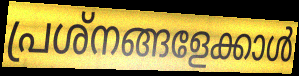
പ്രശ്നങ്ങളേക്കാൾ